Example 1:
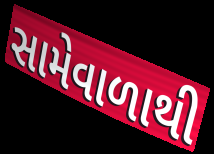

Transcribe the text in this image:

સામેવાળાથી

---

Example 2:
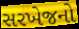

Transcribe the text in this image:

સરખેજનો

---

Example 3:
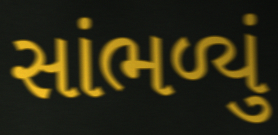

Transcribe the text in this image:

સાંભળ્યું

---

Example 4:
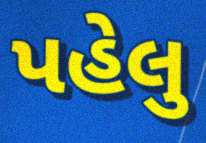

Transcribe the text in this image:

પહેલુ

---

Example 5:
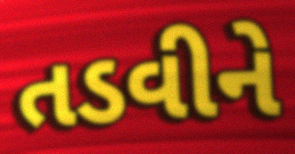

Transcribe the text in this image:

તડવીને